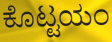
ಕೊಟ್ಟಯಂ